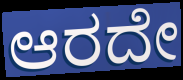
ಆರದೇ